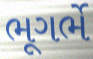
ભૂગર્ભે